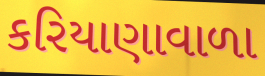
કરિયાણાવાળા